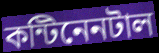
কন্টিনেনটাল